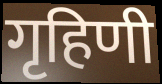
गृहिणी